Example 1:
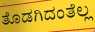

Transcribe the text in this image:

ತೊಡಗಿದಂತೆಲ್ಲ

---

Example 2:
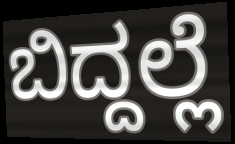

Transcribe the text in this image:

ಬಿದ್ದಲ್ಲೆ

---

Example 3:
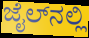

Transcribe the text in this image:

ಜೈಲ್‌ನಲ್ಲಿ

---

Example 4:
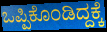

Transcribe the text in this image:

ಒಪ್ಪಿಕೊಂಡಿದ್ದಕ್ಕೆ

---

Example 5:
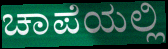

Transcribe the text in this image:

ಚಾಪೆಯಲ್ಲಿ